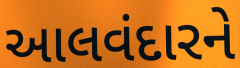
આલવંદારને